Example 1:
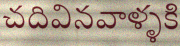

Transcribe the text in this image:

చదివినవాళ్ళకి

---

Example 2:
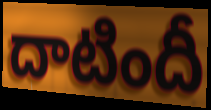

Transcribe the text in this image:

దాటిందీ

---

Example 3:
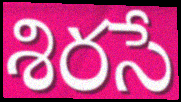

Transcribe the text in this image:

శిరసే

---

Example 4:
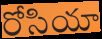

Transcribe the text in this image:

రోసియా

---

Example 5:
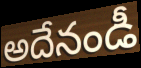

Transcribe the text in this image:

అదేనండీ